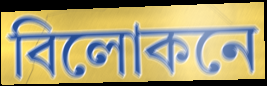
বিলোকনে